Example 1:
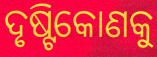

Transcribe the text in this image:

ଦୃଷ୍ଟିକୋଣକୁ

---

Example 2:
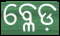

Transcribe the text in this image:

ବ୍ଳେଡ଼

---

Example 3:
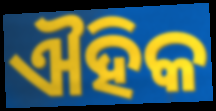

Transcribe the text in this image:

ଐହିକ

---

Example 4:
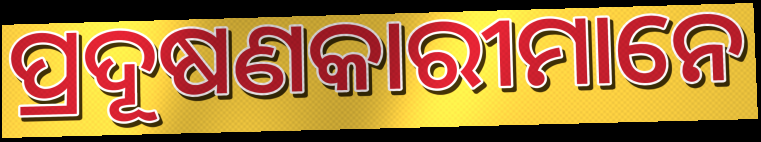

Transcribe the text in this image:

ପ୍ରଦୂଷଣକାରୀମାନେ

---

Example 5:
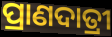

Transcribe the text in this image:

ପ୍ରାଣଦାତ୍ରୀ